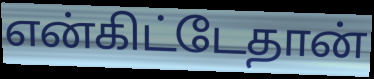
என்கிட்டேதான்